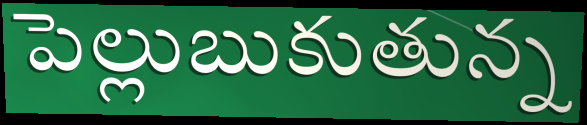
పెల్లుబుకుతున్న